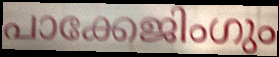
പാക്കേജിംഗും